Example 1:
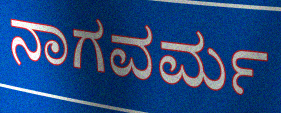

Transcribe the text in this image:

ನಾಗವರ್ಮ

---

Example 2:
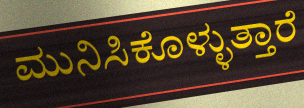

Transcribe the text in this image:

ಮುನಿಸಿಕೊಳ್ಳುತ್ತಾರೆ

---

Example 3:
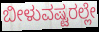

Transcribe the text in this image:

ಬೀಳುವಷ್ಟರಲ್ಲೇ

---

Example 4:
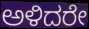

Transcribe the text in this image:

ಅಳಿದರೇ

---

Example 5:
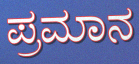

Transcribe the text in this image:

ಪ್ರಮಾನ